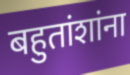
बहुतांशांना